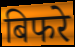
बिफरे